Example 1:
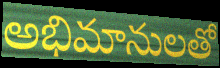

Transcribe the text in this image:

అభిమానులతో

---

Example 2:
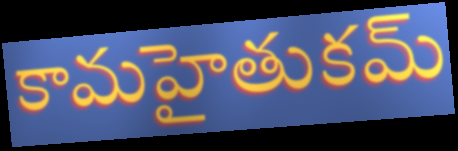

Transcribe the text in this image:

కామహైతుకమ్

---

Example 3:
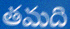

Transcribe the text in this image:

తమది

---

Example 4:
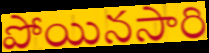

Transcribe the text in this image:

పోయినసారి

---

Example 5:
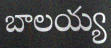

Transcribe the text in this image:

బాలయ్య